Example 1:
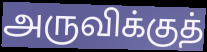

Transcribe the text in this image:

அருவிக்குத்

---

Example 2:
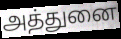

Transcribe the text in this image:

அத்துனை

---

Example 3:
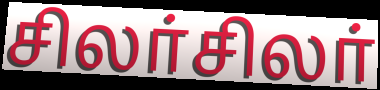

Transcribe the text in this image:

சிலர்சிலர்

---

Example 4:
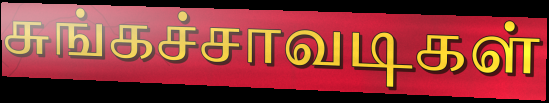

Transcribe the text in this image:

சுங்கச்சாவடிகள்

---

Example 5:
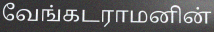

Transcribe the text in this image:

வேங்கடராமனின்